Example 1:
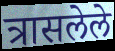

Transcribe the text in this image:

त्रासलेले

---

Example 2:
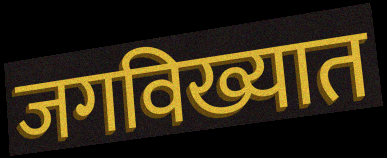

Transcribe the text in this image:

जगविख्यात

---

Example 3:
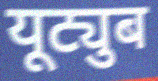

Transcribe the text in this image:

यूट्युब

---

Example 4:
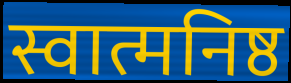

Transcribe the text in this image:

स्वात्मनिष्ठ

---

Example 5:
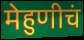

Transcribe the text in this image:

मेहुणीचं